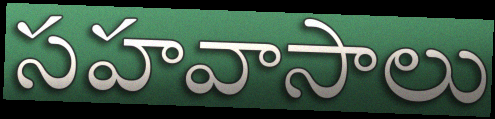
సహవాసాలు